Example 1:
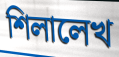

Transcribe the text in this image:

শিলালেখ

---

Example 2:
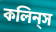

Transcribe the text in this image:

কলিন্‌স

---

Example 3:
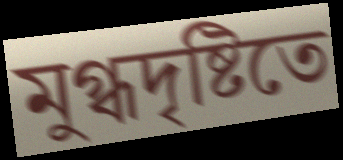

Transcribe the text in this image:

মুগ্ধদৃষ্টিতে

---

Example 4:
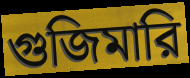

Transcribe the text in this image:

গুজিমারি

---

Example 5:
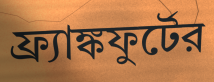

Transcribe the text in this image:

ফ্র্যাঙ্কফুর্টের